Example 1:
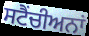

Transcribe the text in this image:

ਸਟੈਂਚੀਅਨਾਂ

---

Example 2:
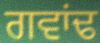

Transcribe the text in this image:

ਗਵਾਂਢ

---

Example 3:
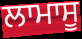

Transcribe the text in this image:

ਲਾਮਾਸੂ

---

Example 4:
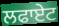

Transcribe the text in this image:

ਲਫਾਏਟ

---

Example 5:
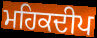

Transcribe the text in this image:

ਮਹਿਕਦੀਪ